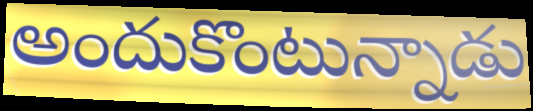
అందుకొంటున్నాడు